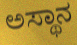
ಅಸ್ಥಾನ